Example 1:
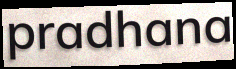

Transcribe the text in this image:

pradhana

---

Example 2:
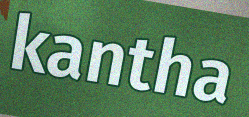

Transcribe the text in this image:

kantha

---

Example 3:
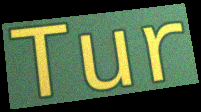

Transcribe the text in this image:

Tur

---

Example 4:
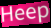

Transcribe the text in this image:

Heep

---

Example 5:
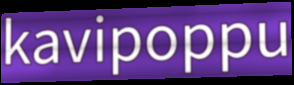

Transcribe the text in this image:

kavipoppu